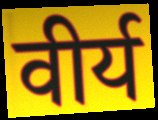
वीर्य